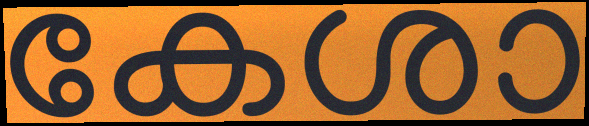
കേശാ